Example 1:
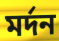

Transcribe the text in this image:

মর্দন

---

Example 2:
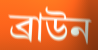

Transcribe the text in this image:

ব্রাউন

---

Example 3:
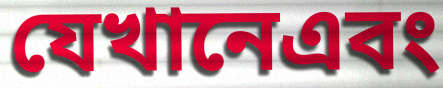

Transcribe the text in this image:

যেখানেএবং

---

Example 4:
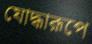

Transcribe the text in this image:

যোদ্ধারূপে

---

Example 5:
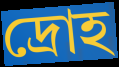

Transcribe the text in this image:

দ্রোহ